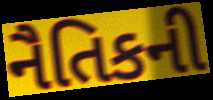
નૈતિકની